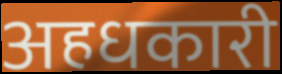
अहधकारी